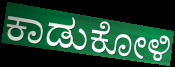
ಕಾಡುಕೋಳಿ